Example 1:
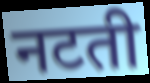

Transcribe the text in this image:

नटती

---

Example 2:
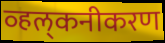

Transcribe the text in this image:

व्हल्कनीकरण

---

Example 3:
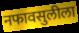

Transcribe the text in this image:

नफावसुलीला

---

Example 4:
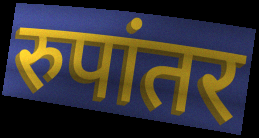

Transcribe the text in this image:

रुपांतर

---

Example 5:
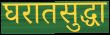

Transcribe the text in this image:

घरातसुद्धा